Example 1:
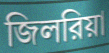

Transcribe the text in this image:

জিলরিয়া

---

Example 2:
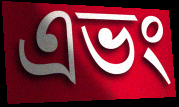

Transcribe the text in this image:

এভং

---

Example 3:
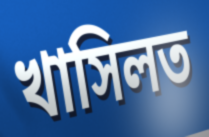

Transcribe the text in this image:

খাসিলত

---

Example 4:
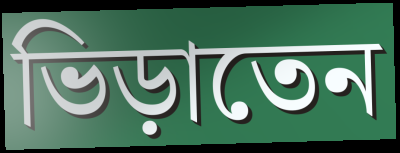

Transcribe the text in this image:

ভিড়াতেন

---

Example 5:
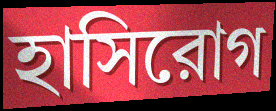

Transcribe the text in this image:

হাসিরোগ